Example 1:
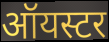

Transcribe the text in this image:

ऑयस्टर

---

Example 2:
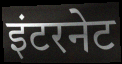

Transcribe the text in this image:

इंटरनेट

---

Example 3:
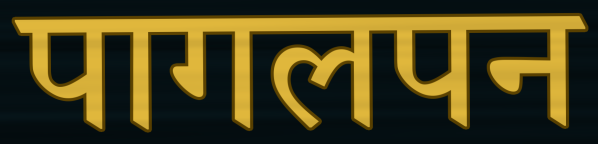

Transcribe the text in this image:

पागलपन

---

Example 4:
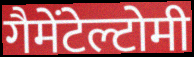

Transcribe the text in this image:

गैमेंटेल्टोमी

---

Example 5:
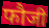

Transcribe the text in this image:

फौजी